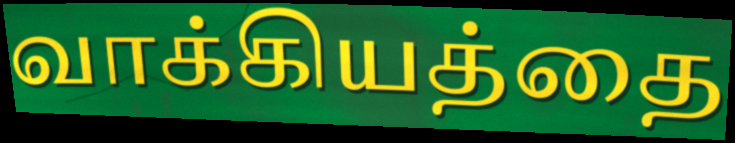
வாக்கியத்தை